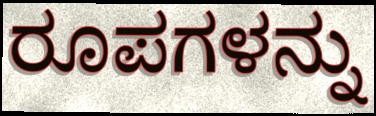
ರೂಪಗಳನ್ನು